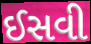
ઈસવી